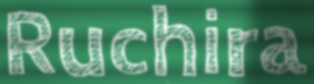
Ruchira